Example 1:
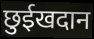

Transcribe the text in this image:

छुईखदान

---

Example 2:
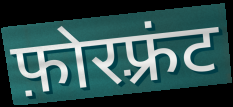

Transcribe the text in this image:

फ़ोरफ़्रंट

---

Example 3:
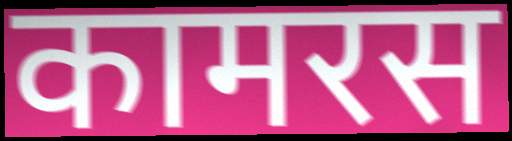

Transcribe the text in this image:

कामरस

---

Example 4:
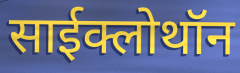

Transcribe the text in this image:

साईक्लोथॉन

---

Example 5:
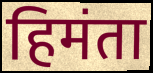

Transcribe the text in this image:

हिमंता